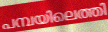
പമ്പയിലെത്തി